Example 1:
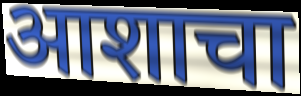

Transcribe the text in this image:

आशाचा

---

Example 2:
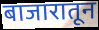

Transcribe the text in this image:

बाजारातून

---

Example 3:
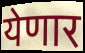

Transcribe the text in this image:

येणार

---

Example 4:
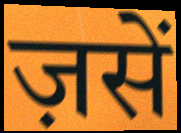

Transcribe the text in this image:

ज़सें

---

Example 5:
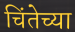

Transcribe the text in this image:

चिंतेच्या